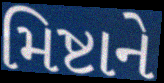
મિષ્ટાને